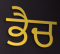
ਭੈਚ